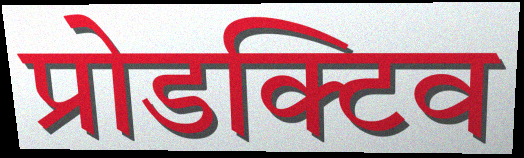
प्रोडक्टिव